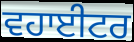
ਵਹਾਈਟਰ